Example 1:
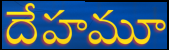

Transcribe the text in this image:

దేహమూ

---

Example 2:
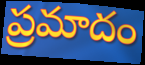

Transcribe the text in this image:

ప్రమాదం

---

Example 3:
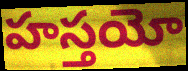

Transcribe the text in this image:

హస్తయో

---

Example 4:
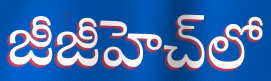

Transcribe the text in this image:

జీజీహెచ్‌లో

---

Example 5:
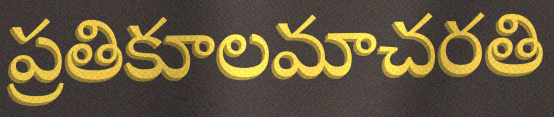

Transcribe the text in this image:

ప్రతికూలమాచరతి